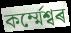
কৰ্ম্মেশ্বৰ